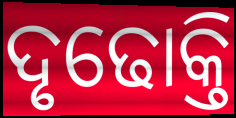
ଦୃଢୋକ୍ତି